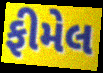
ફીમેલ